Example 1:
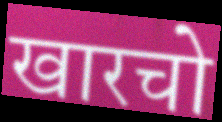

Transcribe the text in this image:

खारचो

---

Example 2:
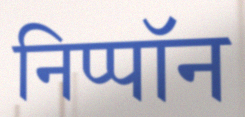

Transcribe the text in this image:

निप्पॉन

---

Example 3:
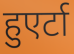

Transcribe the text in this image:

हुएर्टा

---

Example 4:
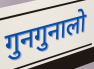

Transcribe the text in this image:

गुनगुनालो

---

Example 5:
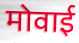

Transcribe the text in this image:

मोवाई